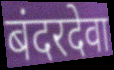
बंदरदेवा